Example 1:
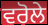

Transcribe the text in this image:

ਵਰੋਲੇ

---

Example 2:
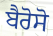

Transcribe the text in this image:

ਬੈਰੋਸੋ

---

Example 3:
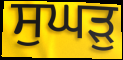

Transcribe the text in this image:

ਸੁਘੜੁ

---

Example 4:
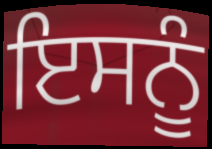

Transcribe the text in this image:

ਇਸਨੂੰ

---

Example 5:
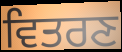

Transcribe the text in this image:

ਵਿਤਰਣ